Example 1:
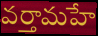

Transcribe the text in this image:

వర్తామహే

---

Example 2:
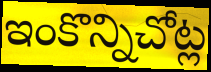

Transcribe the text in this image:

ఇంకొన్నిచోట్ల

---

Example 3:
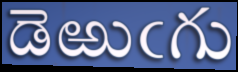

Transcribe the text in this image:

డెఱుఁగు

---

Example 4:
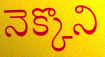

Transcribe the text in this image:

నెక్కొని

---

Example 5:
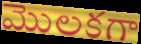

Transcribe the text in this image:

మొలకగా